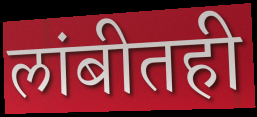
लांबीतही